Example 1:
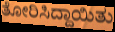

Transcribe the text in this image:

ತೋರಿಸಿದ್ದಾಯಿತು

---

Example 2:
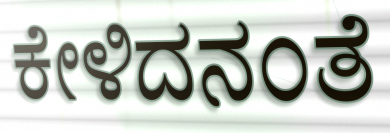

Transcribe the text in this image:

ಕೇಳಿದನಂತೆ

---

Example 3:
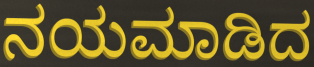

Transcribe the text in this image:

ನಯಮಾಡಿದ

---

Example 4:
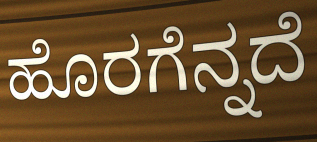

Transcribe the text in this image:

ಹೊರಗೆನ್ನದೆ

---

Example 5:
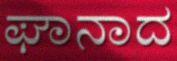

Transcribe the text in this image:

ಘಾನಾದ